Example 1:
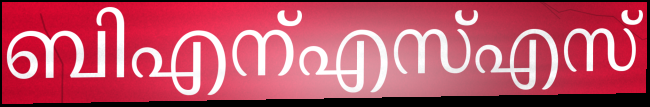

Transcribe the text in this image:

ബിഎന്എസ്എസ്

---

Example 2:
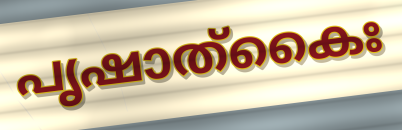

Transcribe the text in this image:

പൃഷാത്കൈഃ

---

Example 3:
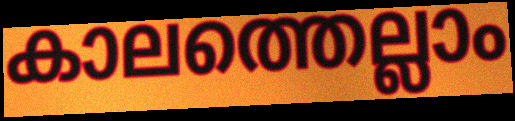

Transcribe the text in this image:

കാലത്തെല്ലാം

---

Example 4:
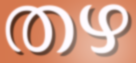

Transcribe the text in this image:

തഴ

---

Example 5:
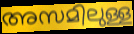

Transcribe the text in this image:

അസമിലുള്ള